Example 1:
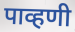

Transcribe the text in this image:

पाव्हणी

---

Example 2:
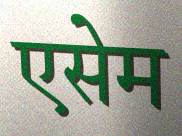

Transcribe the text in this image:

एसेम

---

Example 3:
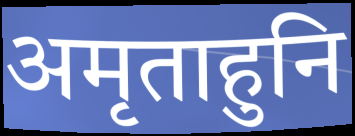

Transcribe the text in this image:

अमृताहुनि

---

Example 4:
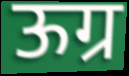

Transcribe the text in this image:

ऊग्र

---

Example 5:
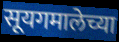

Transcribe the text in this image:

सूयगमालेच्या